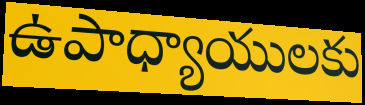
ఉపాధ్యాయులకు